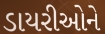
ડાયરીઓને